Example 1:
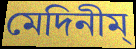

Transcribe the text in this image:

মেদিনীম্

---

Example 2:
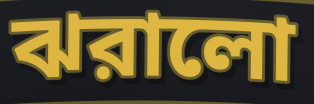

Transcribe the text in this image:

ঝরালো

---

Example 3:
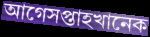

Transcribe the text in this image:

আগেসপ্তাহখানেক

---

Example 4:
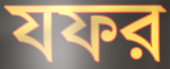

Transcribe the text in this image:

যফর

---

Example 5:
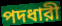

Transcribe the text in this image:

পদধারী